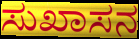
ಸುಖಾಸನ